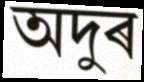
অদুৰ